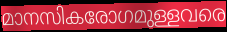
മാനസികരോഗമുള്ളവരെ